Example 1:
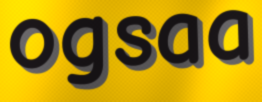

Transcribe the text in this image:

ogsaa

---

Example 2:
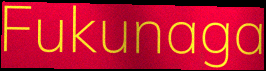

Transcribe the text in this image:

Fukunaga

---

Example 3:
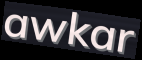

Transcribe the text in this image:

awkar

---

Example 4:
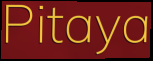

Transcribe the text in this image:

Pitaya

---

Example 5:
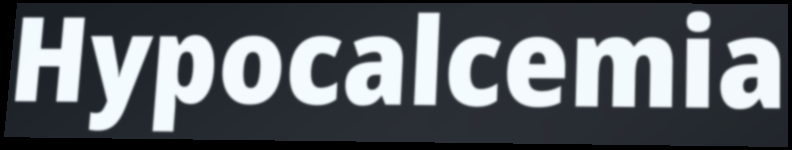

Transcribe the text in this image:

Hypocalcemia